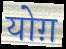
योग़